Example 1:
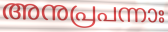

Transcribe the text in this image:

അനുപ്രപന്നാഃ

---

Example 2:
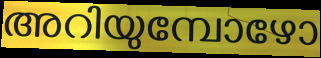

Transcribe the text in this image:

അറിയുമ്പോഴോ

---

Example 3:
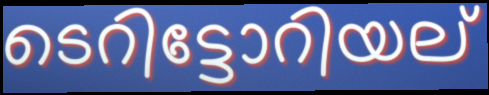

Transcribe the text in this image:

ടെറിട്ടോറിയല്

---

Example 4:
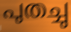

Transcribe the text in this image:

പുതച്ചു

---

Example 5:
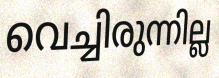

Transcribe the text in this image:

വെച്ചിരുന്നില്ല